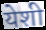
येशी